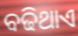
ବଢିଥାଏ